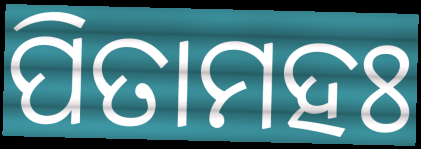
ପିତାମହଃ